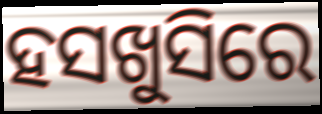
ହସଖୁସିରେ